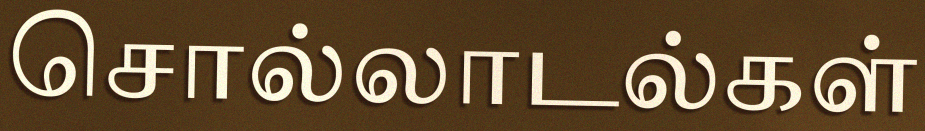
சொல்லாடல்கள்